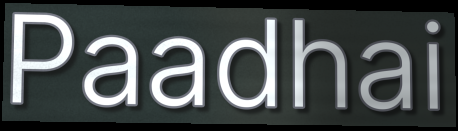
Paadhai